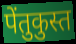
पेंतुकुस्त